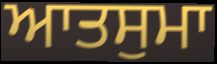
ਆਤਸੁਮਾ